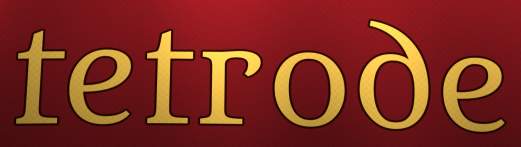
tetrode